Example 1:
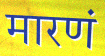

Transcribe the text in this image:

मारणं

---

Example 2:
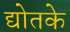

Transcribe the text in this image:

द्योतके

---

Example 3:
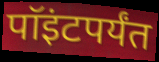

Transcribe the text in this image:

पॉइंटपर्यंत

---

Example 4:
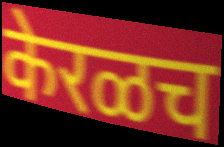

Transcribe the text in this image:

केरळच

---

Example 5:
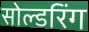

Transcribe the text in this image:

सोल्डरिंग